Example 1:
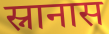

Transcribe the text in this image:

स्नानास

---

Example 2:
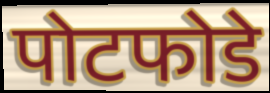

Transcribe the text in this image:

पोटफोडे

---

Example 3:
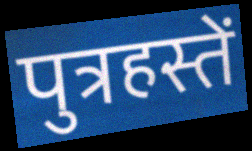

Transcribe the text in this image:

पुत्रहस्तें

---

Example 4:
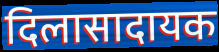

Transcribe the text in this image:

दिलासादायक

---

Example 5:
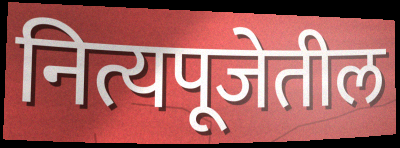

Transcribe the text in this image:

नित्यपूजेतील